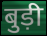
बुड़ी